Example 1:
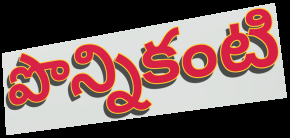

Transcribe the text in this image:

పొన్నికంటి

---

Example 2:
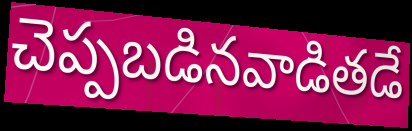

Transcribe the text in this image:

చెప్పబడినవాడితడే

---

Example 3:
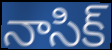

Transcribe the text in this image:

నాసిక్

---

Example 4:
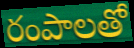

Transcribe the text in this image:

రంపాలతో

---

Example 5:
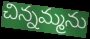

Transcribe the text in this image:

చిన్నమ్మను